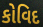
કોવિદ